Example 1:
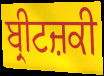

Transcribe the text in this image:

ਬ੍ਰੀਟਜ਼ਕੀ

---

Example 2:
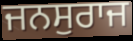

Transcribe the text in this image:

ਜਨਸੁਰਾਜ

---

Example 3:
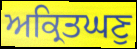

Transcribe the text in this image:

ਅਕ੍ਰਿਤਘਣੁ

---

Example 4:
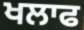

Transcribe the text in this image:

ਖਲਾਫ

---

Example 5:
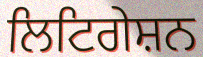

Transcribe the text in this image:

ਲਿਟਿਗੇਸ਼ਨ